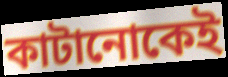
কাটানোকেই